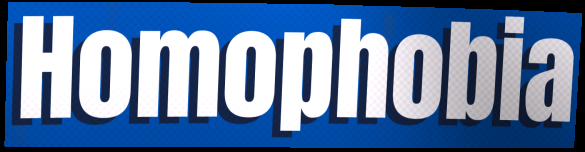
Homophobia